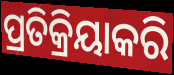
ପ୍ରତିକ୍ରିୟାକରି